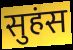
सुहंस